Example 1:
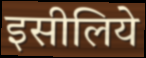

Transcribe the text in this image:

इसीलिये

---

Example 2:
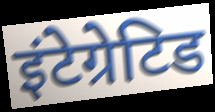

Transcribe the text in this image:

इंटेग्रेटिड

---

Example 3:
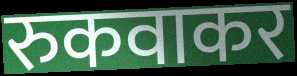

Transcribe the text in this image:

रुकवाकर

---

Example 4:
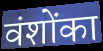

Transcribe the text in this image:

वंशोंका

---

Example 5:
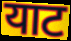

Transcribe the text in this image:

याट